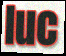
luc